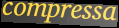
compressa